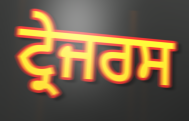
ਟ੍ਰੇਜਰਸ